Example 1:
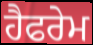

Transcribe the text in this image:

ਹੈਫਰੇਮ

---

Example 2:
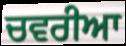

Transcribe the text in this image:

ਚਵਰੀਆ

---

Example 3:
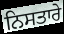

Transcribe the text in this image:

ਨਿਸਤਾਰੇ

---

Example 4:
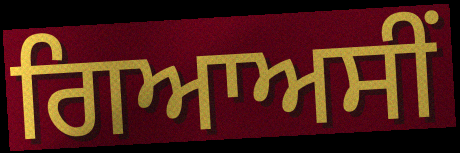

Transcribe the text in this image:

ਗਿਆਅਸੀਂ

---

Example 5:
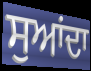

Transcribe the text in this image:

ਸੁਆਂਦਾ